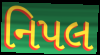
નિપલ